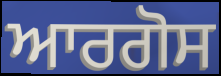
ਆਰਗੋਸ